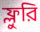
ফ্লুরি